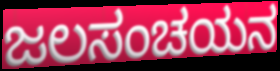
ಜಲಸಂಚಯನ